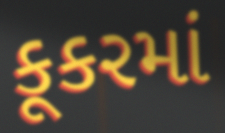
કૂકરમાં